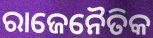
ରାଜେନୈତିକ